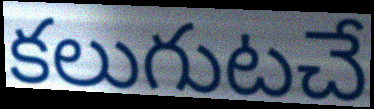
కలుగుటచే